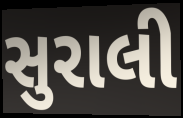
સુરાલી